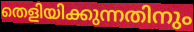
തെളിയിക്കുന്നതിനും